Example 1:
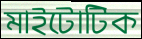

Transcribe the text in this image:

মাইটোটিক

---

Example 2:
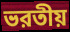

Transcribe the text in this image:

ভরতীয়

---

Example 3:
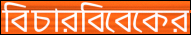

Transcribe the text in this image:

বিচারবিবেকের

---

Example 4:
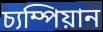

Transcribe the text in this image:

চ্যম্পিয়ান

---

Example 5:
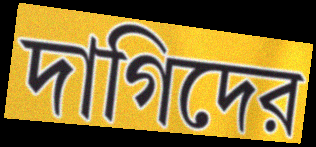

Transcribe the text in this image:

দাগিদের